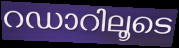
റഡാറിലൂടെ